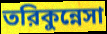
তরিকুন্নেসা